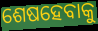
ଶେଷହେବାକୁ